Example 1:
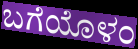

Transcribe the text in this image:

ಬಗೆಯೊಳಂ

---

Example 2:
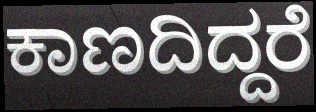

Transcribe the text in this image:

ಕಾಣದಿದ್ದರೆ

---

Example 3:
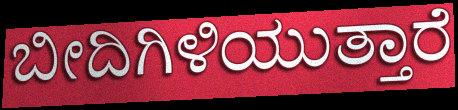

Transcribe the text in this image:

ಬೀದಿಗಿಳಿಯುತ್ತಾರೆ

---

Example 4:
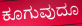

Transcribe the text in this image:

ಕೂಗುವುದೂ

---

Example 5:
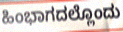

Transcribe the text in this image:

ಹಿಂಭಾಗದಲ್ಲೊಂದು